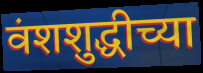
वंशशुद्धीच्या